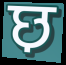
छ़